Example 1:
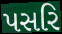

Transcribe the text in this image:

પસરિ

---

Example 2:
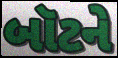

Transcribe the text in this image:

બૉટને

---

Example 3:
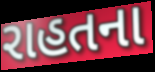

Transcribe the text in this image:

રાહતના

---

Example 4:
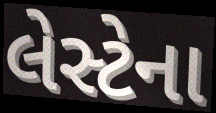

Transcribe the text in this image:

લેસ્ટેના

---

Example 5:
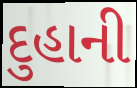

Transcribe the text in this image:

દુહાની